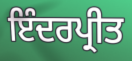
ਇੰਦਰਪ੍ਰੀਤ